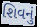
શિવનું